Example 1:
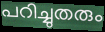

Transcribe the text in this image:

പറിച്ചുതരും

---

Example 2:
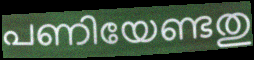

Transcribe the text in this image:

പണിയേണ്ടതു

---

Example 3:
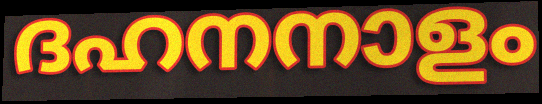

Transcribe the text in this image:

ദഹനനാളം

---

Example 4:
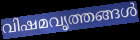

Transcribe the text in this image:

വിഷമവൃത്തങ്ങൾ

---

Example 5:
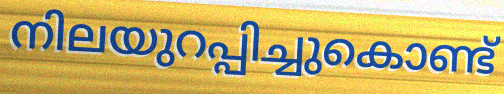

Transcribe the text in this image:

നിലയുറപ്പിച്ചുകൊണ്ട്